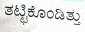
ತಟ್ಟಿಕೊಂಡಿತ್ತು